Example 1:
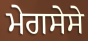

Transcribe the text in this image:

ਮੇਗਸੇਸੇ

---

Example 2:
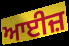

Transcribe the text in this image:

ਆਈਜ਼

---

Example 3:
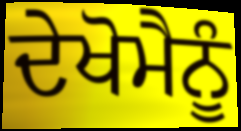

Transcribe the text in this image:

ਦੇਖੋਮੈਨੂੰ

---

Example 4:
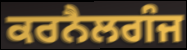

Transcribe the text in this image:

ਕਰਨੈਲਗੰਜ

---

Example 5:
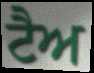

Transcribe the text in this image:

ਟੈਅ